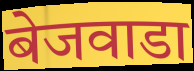
बेजवाडा